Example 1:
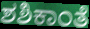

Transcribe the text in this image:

ಶಶಿಕಾಂತೆ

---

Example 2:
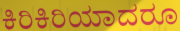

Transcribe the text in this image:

ಕಿರಿಕಿರಿಯಾದರೂ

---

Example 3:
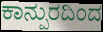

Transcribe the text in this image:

ಕಾನ್ಪುರದಿಂದ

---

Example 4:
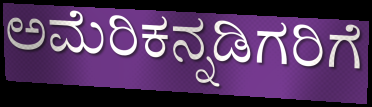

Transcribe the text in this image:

ಅಮೆರಿಕನ್ನಡಿಗರಿಗೆ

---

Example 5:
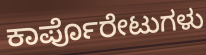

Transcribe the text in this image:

ಕಾರ್ಪೊರೇಟುಗಳು